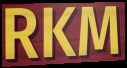
RKM